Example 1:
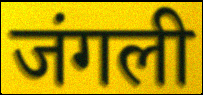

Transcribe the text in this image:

जंगली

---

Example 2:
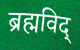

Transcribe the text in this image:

ब्रह्मविद्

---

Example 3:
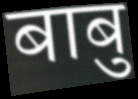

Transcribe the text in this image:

बाबु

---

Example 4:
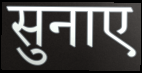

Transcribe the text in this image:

सुनाए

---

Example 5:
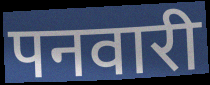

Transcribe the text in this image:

पनवारी